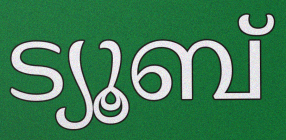
ട്യൂബ്